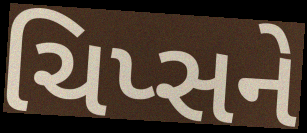
ચિપ્સને